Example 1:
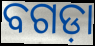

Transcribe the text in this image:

ବଗଡ଼ା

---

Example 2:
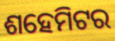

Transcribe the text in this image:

ଶହେମିଟର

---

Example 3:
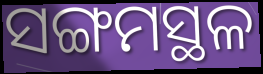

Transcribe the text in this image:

ସଙ୍ଗମସ୍ଥଳ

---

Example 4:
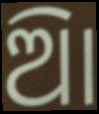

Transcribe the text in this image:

ଆି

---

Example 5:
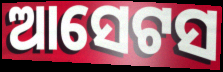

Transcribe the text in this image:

ଆସେଟସ